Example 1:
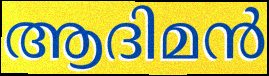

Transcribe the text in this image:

ആദിമൻ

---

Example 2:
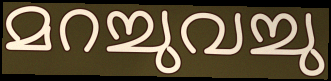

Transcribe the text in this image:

മറച്ചുവച്ചു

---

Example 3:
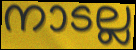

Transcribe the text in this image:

നാടല്ല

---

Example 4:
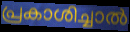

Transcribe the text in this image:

പ്രകാശിച്ചാൽ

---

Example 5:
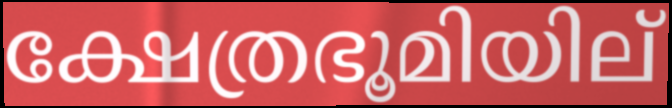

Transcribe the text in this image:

ക്ഷേത്രഭൂമിയില്